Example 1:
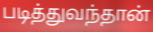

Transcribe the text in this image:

படித்துவந்தான்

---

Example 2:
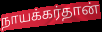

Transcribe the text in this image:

நாயக்கர்தான்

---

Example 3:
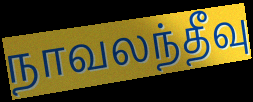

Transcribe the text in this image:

நாவலந்தீவு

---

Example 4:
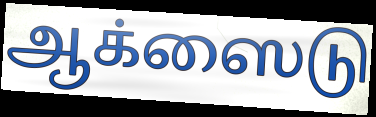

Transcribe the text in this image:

ஆக்ஸைடு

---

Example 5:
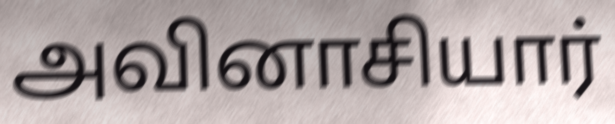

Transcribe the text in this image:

அவினாசியார்